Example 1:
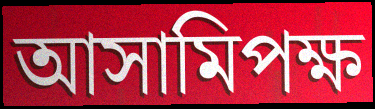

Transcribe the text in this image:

আসামিপক্ষ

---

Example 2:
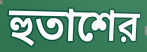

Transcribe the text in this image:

হুতাশের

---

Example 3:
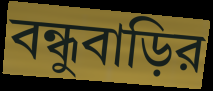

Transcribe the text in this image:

বন্ধুবাড়ির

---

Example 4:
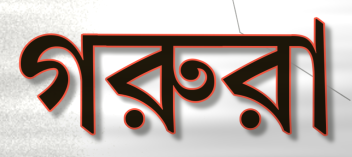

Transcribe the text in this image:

গরুরা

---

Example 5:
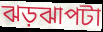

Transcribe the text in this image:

ঝড়ঝাপটা